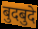
बुदबुदे